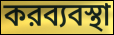
করব্যবস্থা